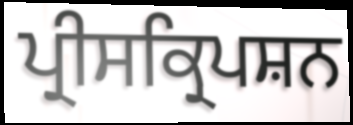
ਪ੍ਰੀਸਕ੍ਰਿਪਸ਼ਨ